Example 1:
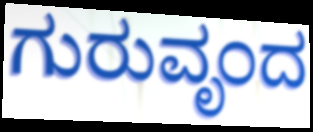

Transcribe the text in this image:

ಗುರುವೃಂದ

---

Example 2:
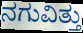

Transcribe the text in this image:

ನಗುವಿತ್ತು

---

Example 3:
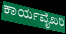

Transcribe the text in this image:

ಕಾರ್ಯವೈಖರಿ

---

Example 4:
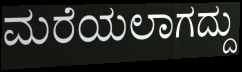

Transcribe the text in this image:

ಮರೆಯಲಾಗದ್ದು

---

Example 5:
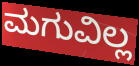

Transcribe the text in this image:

ಮಗುವಿಲ್ಲ